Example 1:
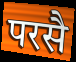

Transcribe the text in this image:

परसै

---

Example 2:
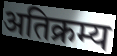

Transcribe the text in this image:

अतिक्रम्य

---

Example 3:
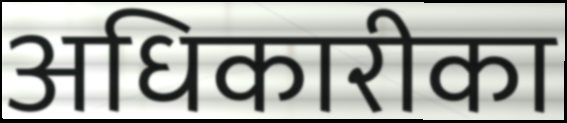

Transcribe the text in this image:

अधिकारीका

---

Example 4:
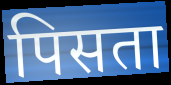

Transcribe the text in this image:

पिसता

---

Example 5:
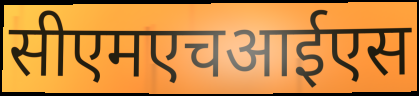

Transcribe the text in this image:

सीएमएचआईएस